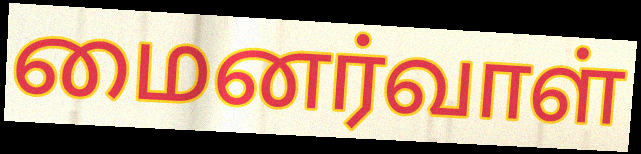
மைனர்வாள்